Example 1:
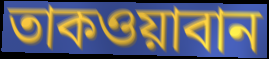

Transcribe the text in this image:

তাকওয়াবান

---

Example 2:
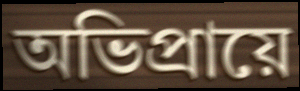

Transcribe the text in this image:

অভিপ্রায়ে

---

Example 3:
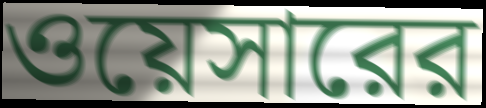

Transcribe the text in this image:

ওয়েসারের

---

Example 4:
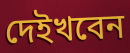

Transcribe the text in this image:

দেইখবেন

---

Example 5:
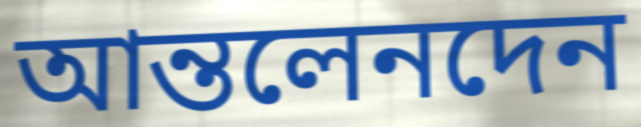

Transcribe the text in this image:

আন্তলেনদেন